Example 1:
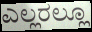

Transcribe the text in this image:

ಎಲ್ಲರಲ್ಲೂ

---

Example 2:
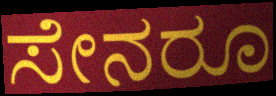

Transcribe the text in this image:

ಸೇನರೂ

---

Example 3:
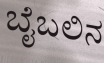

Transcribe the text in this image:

ಬೈಬಲಿನ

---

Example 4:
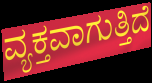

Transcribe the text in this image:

ವ್ಯಕ್ತವಾಗುತ್ತಿದೆ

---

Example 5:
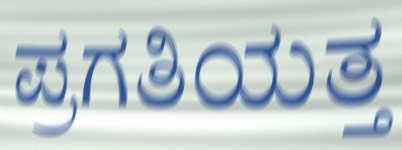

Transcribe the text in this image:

ಪ್ರಗತಿಯತ್ತ